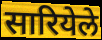
सारियेले